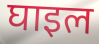
घाइल